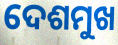
ଦେଶମୁଖ